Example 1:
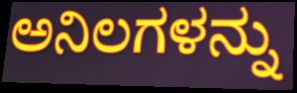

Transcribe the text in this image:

ಅನಿಲಗಳನ್ನು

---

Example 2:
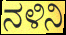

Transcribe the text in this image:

ನಳಿನಿ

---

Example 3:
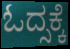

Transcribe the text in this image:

ಓದ್ಸಕ್ಕೆ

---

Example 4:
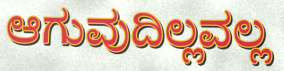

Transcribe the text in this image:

ಆಗುವುದಿಲ್ಲವಲ್ಲ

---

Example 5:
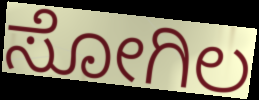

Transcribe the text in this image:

ಸೋಗಿಲ